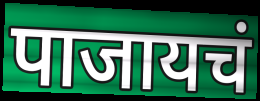
पाजायचं